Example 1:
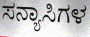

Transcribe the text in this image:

ಸನ್ಯಾಸಿಗಳ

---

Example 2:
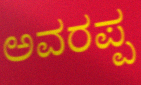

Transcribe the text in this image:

ಅವರಪ್ಪ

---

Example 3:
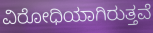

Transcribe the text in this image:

ವಿರೋಧಿಯಾಗಿರುತ್ತವೆ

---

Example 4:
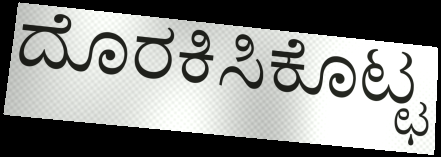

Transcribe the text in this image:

ದೊರಕಿಸಿಕೊಟ್ಟ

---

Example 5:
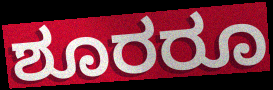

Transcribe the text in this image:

ಶೂರರೂ